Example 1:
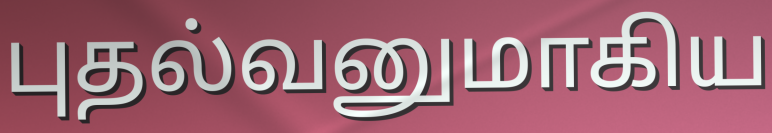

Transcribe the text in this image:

புதல்வனுமாகிய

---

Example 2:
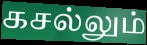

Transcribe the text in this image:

கசல்லும்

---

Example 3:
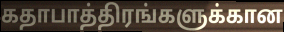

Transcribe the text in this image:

கதாபாத்திரங்களுக்கான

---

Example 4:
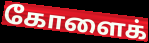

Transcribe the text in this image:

கோளைக்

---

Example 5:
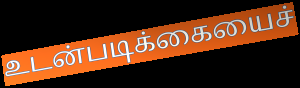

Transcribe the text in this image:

உடன்படிக்கையைச்